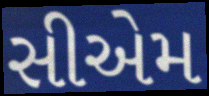
સીએમ